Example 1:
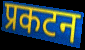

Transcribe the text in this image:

प्रकटन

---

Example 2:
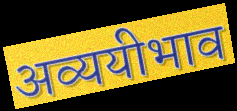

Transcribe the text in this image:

अव्ययीभाव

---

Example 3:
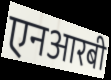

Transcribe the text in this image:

एनआरबी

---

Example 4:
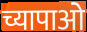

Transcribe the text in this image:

च्यापाओ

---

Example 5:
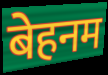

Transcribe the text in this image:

बेहनम